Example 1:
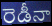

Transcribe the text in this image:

రెడీనా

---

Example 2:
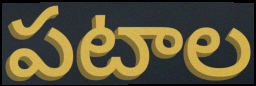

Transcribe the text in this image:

పటాల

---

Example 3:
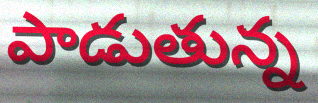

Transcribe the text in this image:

పాడుతున్న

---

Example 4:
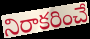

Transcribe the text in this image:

నిరాకరించే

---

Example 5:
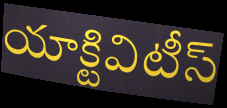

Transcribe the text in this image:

యాక్టివిటీస్